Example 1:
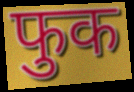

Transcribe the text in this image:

फुक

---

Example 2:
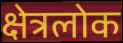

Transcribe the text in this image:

क्षेत्रलोक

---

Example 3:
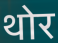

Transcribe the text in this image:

थोर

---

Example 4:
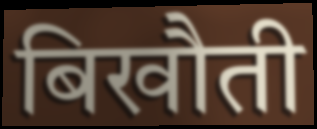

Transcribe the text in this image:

बिखौती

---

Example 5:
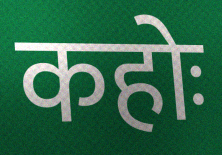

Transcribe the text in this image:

कहोः